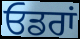
ਓਡਰਾਂ